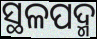
ସ୍ଥଳପଦ୍ମ